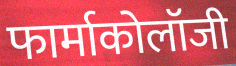
फार्माकोलॉजी